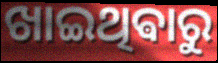
ଖାଇଥିଵାରୁ